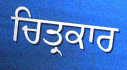
ਚਿਤ੍ਰਕਾਰ